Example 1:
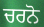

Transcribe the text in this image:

ਚਰਨੋ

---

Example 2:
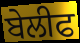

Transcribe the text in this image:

ਬੇਲੀਫ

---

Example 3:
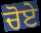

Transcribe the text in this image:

ਚੋਏ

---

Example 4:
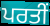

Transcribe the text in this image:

ਪਰਤੀਂ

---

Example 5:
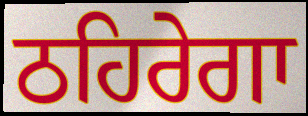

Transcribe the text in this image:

ਠਹਿਰੇਗਾ